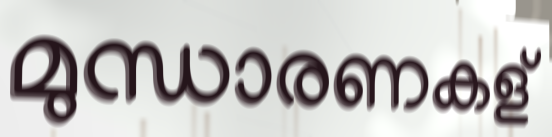
മുന്ധാരണകള്